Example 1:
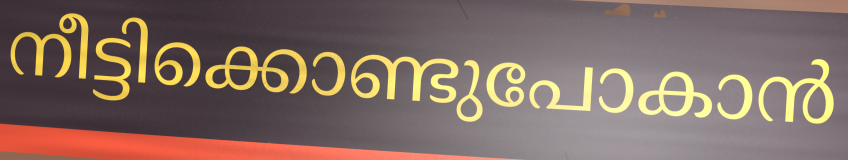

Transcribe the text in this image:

നീട്ടിക്കൊണ്ടുപോകാൻ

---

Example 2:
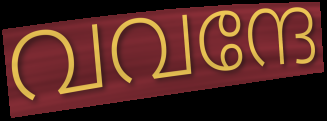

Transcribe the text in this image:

വവന്ദേ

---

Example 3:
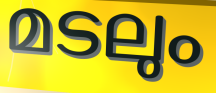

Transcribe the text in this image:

മടലും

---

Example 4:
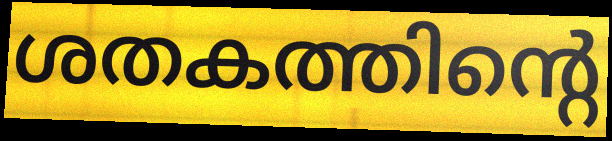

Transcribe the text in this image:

ശതകത്തിന്റെ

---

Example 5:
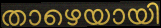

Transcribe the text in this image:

താഴെയായി